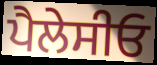
ਪੈਲੇਸੀਓ